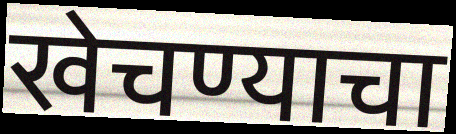
खेचण्याचा